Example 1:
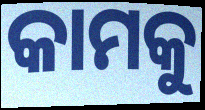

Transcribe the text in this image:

କାମକୁ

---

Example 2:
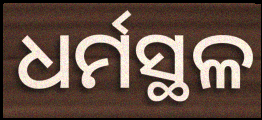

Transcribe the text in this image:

ଧର୍ମସ୍ଥଳ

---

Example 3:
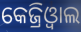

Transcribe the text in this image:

କେଜ୍ରିଓ୍ଵାଲ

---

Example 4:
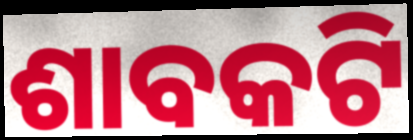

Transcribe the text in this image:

ଶାବକଟି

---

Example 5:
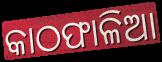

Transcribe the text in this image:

କାଠଫାଳିଆ